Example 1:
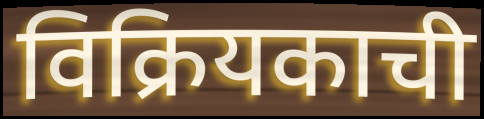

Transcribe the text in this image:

विक्रियकाची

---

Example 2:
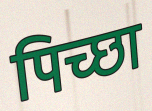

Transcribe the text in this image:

पिच्छा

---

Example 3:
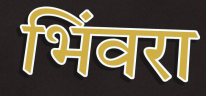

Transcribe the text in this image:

भिंवरा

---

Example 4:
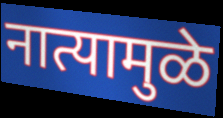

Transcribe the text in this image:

नात्यामुळे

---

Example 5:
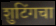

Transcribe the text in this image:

शुटिंगचा